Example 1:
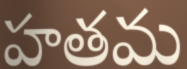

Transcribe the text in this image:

హతమ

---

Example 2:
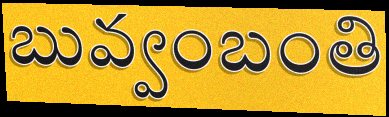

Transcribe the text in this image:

బువ్వంబంతి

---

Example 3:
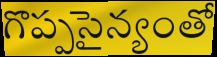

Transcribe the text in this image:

గొప్పసైన్యంతో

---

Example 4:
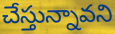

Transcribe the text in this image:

చేస్తున్నావని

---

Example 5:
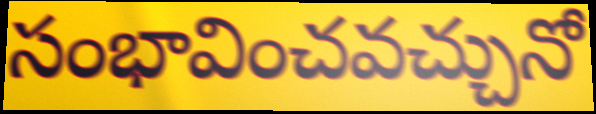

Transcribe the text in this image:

సంభావించవచ్చునో